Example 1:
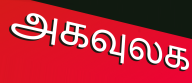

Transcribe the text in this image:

அகவுலக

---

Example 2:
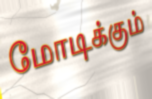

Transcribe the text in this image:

மோடிக்கும்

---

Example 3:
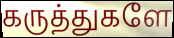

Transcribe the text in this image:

கருத்துகளே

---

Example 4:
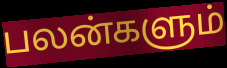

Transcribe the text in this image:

பலன்களும்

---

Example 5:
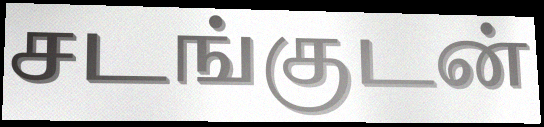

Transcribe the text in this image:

சடங்குடன்